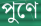
পুণে